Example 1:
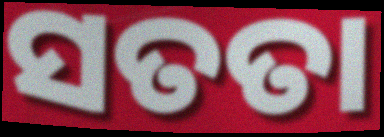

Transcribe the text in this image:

ସତତା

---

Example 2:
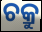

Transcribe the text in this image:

ଚକ୍ରୁ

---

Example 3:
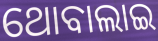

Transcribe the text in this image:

ଥୋବାଲାଇ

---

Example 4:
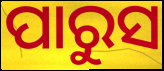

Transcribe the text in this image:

ପାରୁସ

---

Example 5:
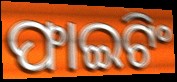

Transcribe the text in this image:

ଫାଇଟିଂ